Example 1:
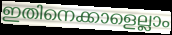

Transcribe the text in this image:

ഇതിനെക്കാളെല്ലാം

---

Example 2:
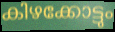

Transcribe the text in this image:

കിഴക്കോട്ടും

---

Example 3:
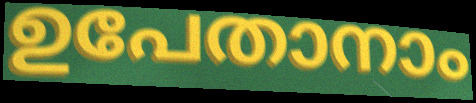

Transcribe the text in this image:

ഉപേതാനാം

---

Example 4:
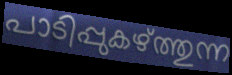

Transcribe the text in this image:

പാടിപ്പുകഴ്ത്തുന്ന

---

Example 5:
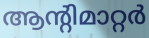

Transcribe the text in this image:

ആന്റിമാറ്റർ